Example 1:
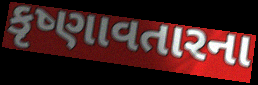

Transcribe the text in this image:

કૃષ્ણાવતારના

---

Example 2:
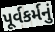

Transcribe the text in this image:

પૂર્વકર્મનું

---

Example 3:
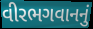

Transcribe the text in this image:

વીરભગવાનનું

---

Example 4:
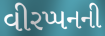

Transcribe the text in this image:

વીરપ્પનની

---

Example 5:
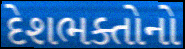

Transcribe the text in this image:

દેશભક્તોનો